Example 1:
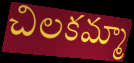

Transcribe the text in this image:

చిలకమ్మా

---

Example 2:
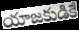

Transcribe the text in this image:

యాజకుడికే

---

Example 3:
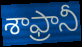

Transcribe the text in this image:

శాఫ్రానీ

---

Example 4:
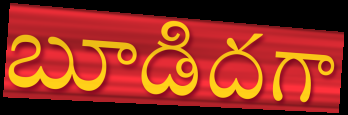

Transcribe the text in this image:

బూడిదగా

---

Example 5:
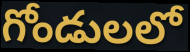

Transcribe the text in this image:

గోండులలో